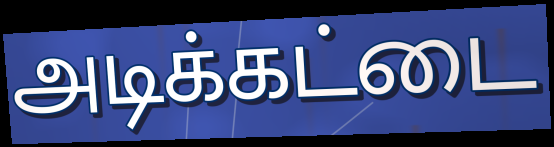
அடிக்கட்டை